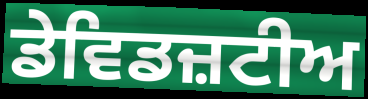
ਡੇਵਿਡਜ਼ਟੀਅ